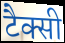
टैक्सी